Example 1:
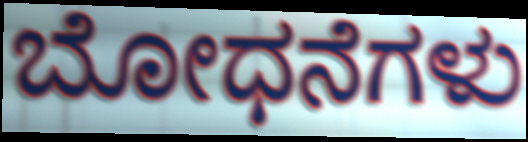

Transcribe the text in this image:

ಬೋಧನೆಗಳು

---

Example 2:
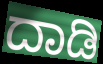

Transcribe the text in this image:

ದಾಡಿ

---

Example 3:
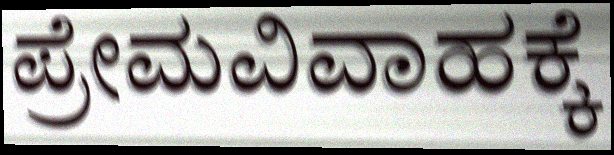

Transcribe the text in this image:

ಪ್ರೇಮವಿವಾಹಕ್ಕೆ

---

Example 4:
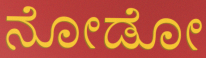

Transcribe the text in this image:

ನೋಡೋ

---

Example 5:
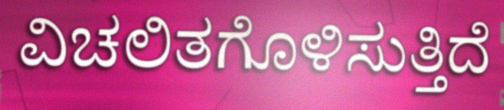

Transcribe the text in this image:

ವಿಚಲಿತಗೊಳಿಸುತ್ತಿದೆ